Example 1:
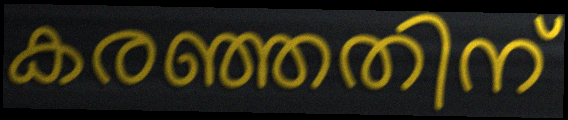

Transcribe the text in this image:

കരഞ്ഞതിന്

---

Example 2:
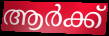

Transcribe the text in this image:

ആർക്ക്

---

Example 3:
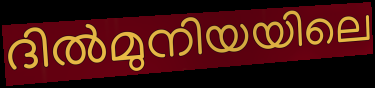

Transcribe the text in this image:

ദിൽമുനിയയിലെ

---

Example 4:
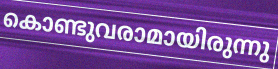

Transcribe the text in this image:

കൊണ്ടുവരാമായിരുന്നു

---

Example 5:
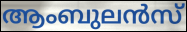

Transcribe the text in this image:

ആംബുലൻസ്